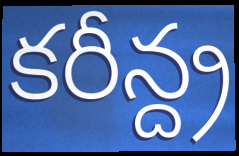
కరీన్ద్ర